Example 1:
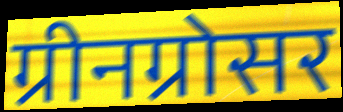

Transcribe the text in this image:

ग्रीनग्रोसर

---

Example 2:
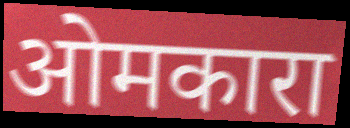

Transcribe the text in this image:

ओमकारा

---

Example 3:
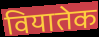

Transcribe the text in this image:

वियातेक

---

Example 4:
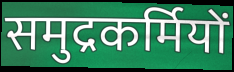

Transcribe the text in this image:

समुद्रकर्मियों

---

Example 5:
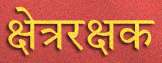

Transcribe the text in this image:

क्षेत्ररक्षक